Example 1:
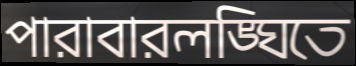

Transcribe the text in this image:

পারাবারলঙ্ঘিতে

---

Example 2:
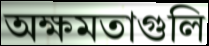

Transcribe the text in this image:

অক্ষমতাগুলি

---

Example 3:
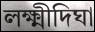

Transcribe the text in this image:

লক্ষ্মীদিঘা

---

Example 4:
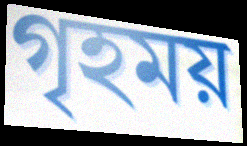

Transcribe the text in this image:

গৃহময়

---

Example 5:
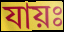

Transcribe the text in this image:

যায়ঃ